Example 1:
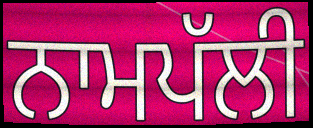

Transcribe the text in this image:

ਨਾਮਪੱਲੀ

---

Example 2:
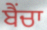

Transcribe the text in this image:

ਬੈਂਚਾ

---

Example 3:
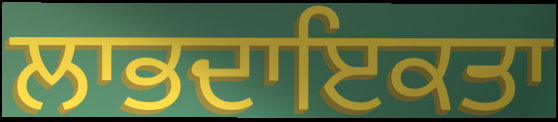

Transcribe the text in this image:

ਲਾਭਦਾਇਕਤਾ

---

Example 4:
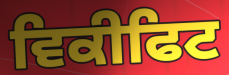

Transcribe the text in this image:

ਵਿਕੀਫਿਟ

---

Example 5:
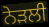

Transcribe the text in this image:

ਨੇੜਲੀ